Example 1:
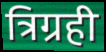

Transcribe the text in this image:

त्रिग्रही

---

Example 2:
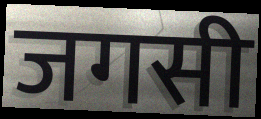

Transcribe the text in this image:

जगसी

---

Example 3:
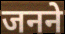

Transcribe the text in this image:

जनने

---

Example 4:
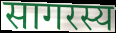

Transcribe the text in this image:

सागरस्य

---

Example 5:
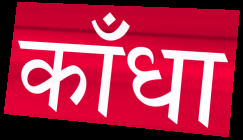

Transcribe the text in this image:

काँधा